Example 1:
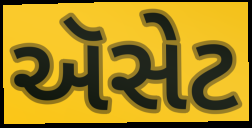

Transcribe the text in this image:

ઍસેટ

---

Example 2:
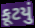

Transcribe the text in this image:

કૂટયું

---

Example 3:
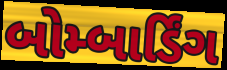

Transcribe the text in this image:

બોમ્બાર્ડિંગ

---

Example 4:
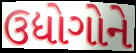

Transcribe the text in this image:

ઉદ્યોગોને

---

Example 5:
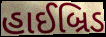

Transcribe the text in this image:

હાઈબ્રિડ